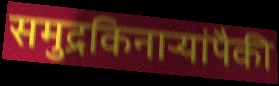
समुद्रकिनाऱ्यांपैकी